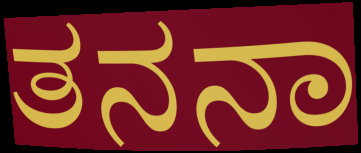
ತನನಾ